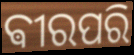
ଵୀରପରି